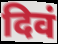
दिवं